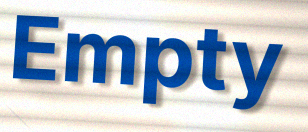
Empty